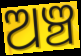
ଅଞ୍ଚ